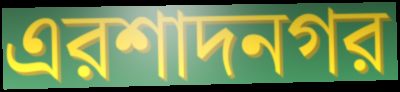
এরশাদনগর